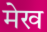
मेख